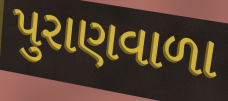
પુરાણવાળા